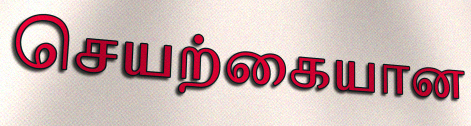
செயற்கையான